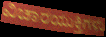
ವಿಚಾರಯುಕ್ತಿಗಳು